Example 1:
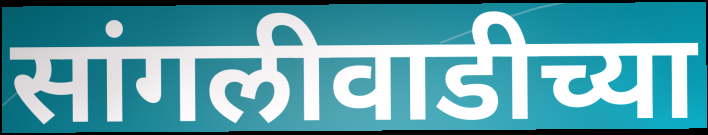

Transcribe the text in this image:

सांगलीवाडीच्या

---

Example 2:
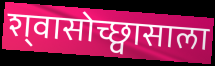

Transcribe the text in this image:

श्वासोच्छ्वासाला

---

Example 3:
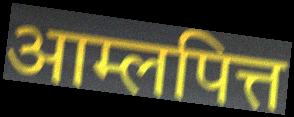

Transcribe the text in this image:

आम्लपित्त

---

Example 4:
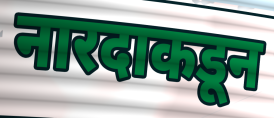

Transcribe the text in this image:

नारदाकडून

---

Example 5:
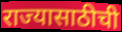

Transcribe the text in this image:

राज्यासाठीची